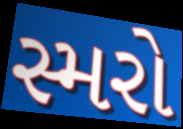
સ્મરો